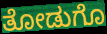
ತೋಡುಗೊ